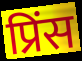
प्रिंस